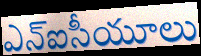
ఎన్ఐసీయూలు